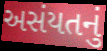
અસંયતનું